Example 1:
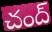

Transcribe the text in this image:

చంద్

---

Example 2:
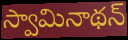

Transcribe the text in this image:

స్వామినాథన్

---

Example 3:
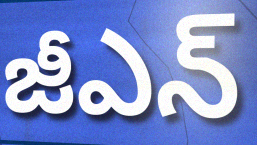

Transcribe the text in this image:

జీఎన్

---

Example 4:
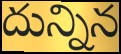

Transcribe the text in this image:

దున్నిన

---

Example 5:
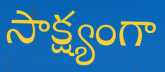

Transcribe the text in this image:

సాక్ష్యంగా